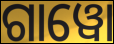
ଗାୱୋ